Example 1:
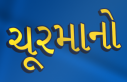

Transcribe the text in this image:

ચૂરમાનો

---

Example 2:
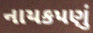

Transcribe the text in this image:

નાયકપણું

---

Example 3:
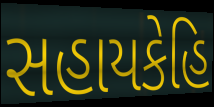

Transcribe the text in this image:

સહાયકેહિ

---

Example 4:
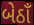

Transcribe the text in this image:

બેઠાઁ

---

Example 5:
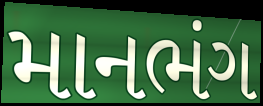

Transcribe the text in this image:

માનભંગ